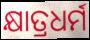
କ୍ଷାତ୍ରଧର୍ମ